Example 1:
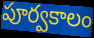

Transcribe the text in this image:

పూర్వకాలం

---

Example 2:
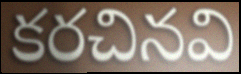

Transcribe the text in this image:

కరచినవి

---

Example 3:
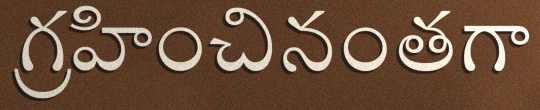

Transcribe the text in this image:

గ్రహించినంతగా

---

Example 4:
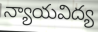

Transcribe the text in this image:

న్యాయవిద్య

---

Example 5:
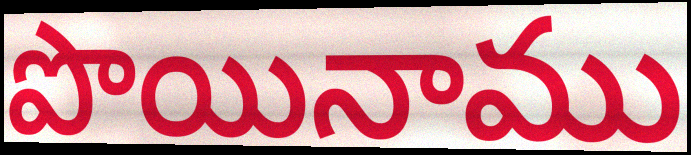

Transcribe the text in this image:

పొయినాము